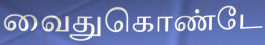
வைதுகொண்டே